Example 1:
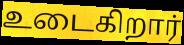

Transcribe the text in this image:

உடைகிறார்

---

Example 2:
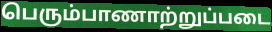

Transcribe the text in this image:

பெரும்பாணாற்றுப்படை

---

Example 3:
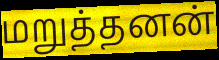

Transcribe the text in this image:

மறுத்தனன்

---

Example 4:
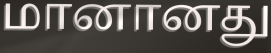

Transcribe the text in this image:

மானானது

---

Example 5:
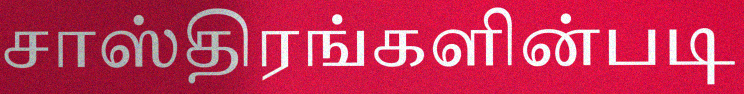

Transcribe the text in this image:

சாஸ்திரங்களின்படி